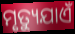
ମୃତ୍ୟୁଯାଏଁ